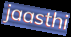
jaasthi